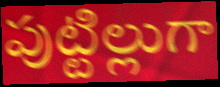
పుట్టిల్లుగా